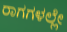
ರಾಗಗಳಲ್ಲೇ